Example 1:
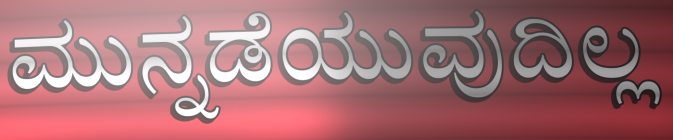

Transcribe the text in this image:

ಮುನ್ನಡೆಯುವುದಿಲ್ಲ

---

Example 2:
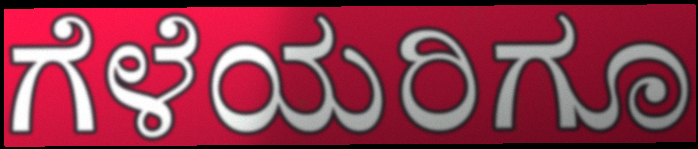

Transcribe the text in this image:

ಗೆಳೆಯರಿಗೂ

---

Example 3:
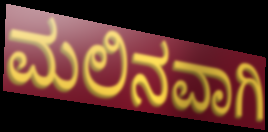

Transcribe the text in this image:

ಮಲಿನವಾಗಿ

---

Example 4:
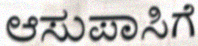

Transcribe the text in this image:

ಆಸುಪಾಸಿಗೆ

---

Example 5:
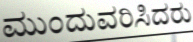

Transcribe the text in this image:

ಮುಂದುವರಿಸಿದರು